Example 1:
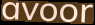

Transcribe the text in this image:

avoor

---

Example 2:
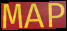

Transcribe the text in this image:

MAP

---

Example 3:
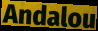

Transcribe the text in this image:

Andalou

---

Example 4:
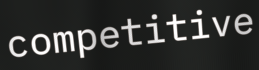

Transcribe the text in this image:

competitive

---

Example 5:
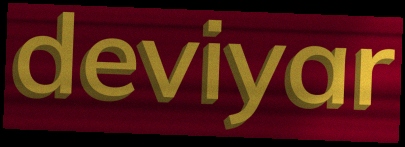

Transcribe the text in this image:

deviyar